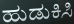
ಹುಡುಕಿಸಿ